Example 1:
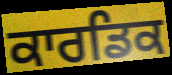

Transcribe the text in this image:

ਕਾਰਡਿਕ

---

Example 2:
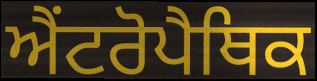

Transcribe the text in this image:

ਐਂਟਰੋਪੈਥਿਕ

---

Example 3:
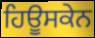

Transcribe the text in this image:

ਹਿਊਸਕੇਨ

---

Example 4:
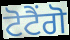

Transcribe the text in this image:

ਟੋਟੈਂਗੋ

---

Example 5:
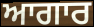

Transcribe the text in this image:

ਆਗਾਰ